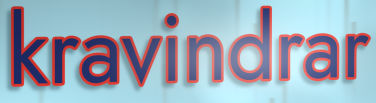
kravindrar